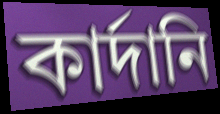
কার্দানি